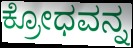
ಕ್ರೋಧವನ್ನ